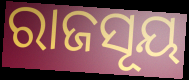
ରାଜସୂୟ